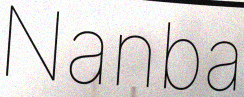
Nanba